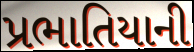
પ્રભાતિયાની